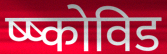
ष्ष्कोविड